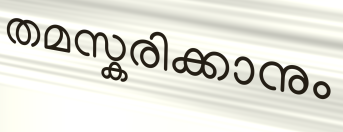
തമസ്കരിക്കാനും